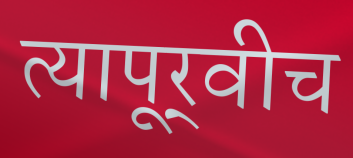
त्यापूर्वीच